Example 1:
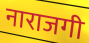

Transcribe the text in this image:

नाराजगी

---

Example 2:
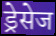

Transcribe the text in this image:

ड्रेसेज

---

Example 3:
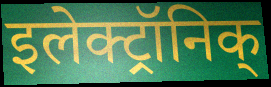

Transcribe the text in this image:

इलेक्ट्रॉनिक्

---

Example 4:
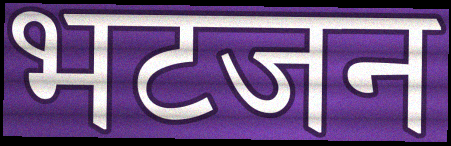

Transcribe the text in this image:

भटजन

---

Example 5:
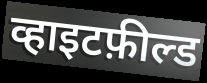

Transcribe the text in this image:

व्हाइटफ़ील्ड